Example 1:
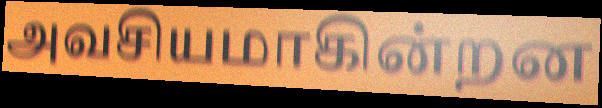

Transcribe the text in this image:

அவசியமாகின்றன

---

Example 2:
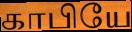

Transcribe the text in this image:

காபியே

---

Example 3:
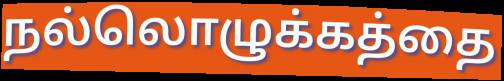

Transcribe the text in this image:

நல்லொழுக்கத்தை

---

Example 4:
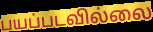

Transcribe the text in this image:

பயப்படவில்லை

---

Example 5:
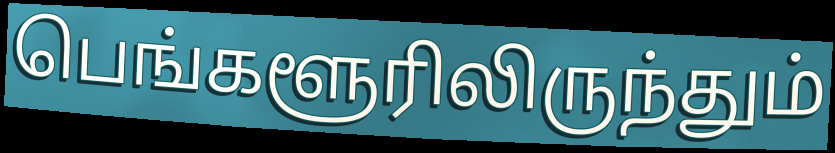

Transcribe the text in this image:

பெங்களூரிலிருந்தும்